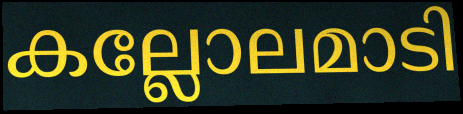
കല്ലോലമാടി